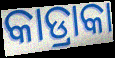
କାଡ୍ରାକା